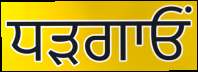
ਧੜਗਾਓਂ